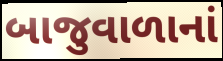
બાજુવાળાનાં